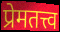
प्रेमतत्त्व